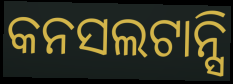
କନସଲଟାନ୍ସି